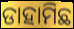
ଡାହାମିଛ